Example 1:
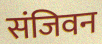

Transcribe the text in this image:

संजिवन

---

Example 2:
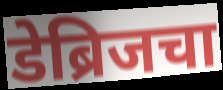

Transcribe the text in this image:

डेब्रिजचा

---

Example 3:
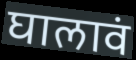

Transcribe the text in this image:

घालावं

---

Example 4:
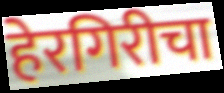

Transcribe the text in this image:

हेरगिरीचा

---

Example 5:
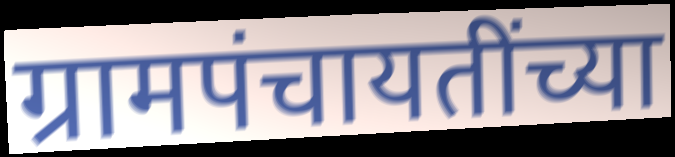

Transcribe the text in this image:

ग्रामपंचायतींच्या